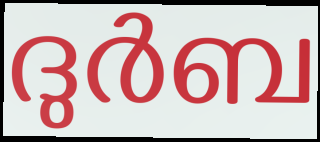
ദുർബ